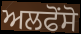
ਅਲਫੋਂਸੋ